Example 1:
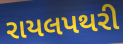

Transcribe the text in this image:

રાયલપથરી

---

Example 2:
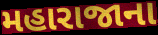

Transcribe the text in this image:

મહારાજાના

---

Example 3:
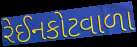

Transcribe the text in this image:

રેઈનકોટવાળા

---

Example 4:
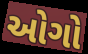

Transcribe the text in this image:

ઓગો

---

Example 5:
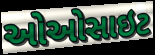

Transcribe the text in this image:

ઓઓસાઇટ